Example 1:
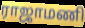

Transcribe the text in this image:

ராஜாமணி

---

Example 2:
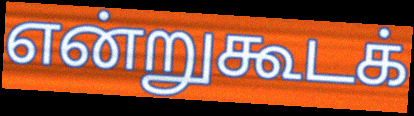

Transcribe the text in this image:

என்றுகூடக்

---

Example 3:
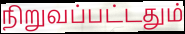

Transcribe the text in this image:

நிறுவப்பட்டதும்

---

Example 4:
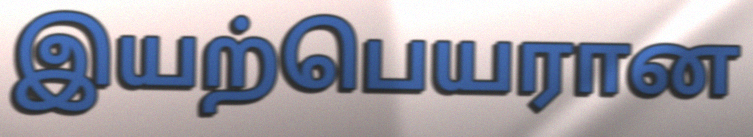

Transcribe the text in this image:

இயற்பெயரான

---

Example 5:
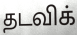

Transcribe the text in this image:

தடவிக்